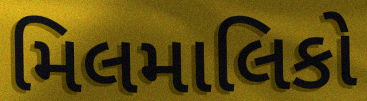
મિલમાલિકો